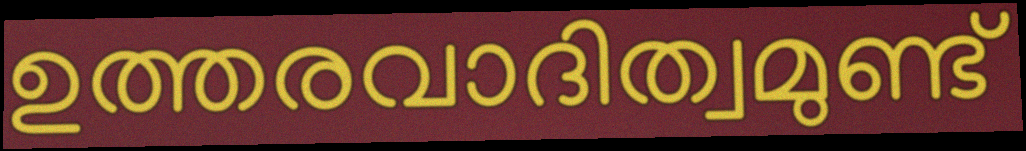
ഉത്തരവാദിത്വമുണ്ട്